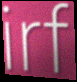
irf